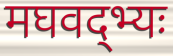
मघवद्भ्यः